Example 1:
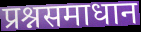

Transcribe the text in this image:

प्रश्नसमाधान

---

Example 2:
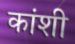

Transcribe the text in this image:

कांशी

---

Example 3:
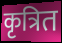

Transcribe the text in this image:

कृत्रित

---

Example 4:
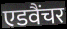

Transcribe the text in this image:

एडवैंचर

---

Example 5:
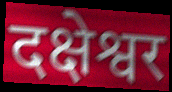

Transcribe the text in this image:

दक्षेश्वर